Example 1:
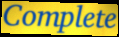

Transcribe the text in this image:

Complete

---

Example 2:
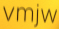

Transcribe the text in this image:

vmjw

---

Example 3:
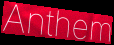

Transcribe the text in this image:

Anthem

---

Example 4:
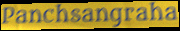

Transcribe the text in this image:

Panchsangraha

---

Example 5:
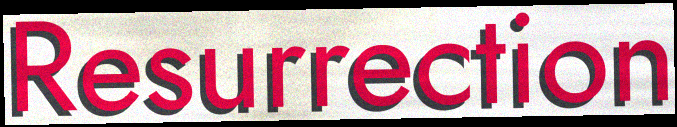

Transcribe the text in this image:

Resurrection